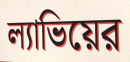
ল্যাভিয়ের